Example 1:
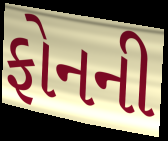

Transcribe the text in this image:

ફોનની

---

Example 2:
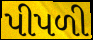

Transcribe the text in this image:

પીપળી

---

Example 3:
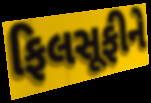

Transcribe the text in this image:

ફિલસૂફીને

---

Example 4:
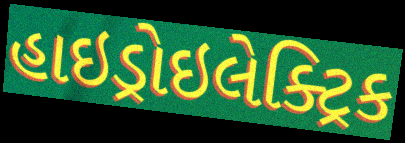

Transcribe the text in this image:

હાઇડ્રોઇલેક્ટ્રિક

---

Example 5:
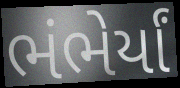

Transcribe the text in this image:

ભંભેર્યાં